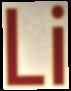
Li